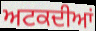
ਅਟਕਦੀਆਂ